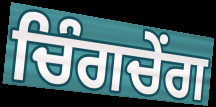
ਚਿੰਗਚੇਂਗ